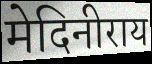
मेदिनीराय